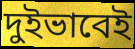
দুইভাবেই